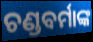
ଚଣ୍ଡବର୍ମାଙ୍କ